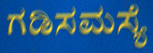
ಗಡಿಸಮಸ್ಯೆ